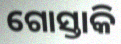
ଗୋସ୍ତାକି